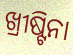
ଖ୍ରୀଷ୍ଟିନା